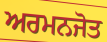
ਅਰਮਨਜੋਤ